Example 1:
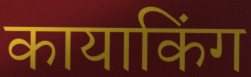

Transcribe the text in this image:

कायाकिंग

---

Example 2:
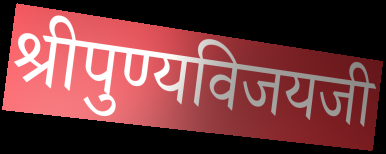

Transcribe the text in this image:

श्रीपुण्यविजयजी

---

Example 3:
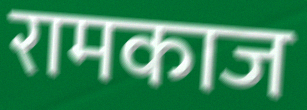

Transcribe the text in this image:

रामकाज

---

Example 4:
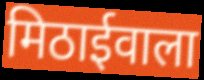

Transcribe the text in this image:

मिठाईवाला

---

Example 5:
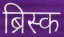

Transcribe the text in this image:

ब्रिस्क